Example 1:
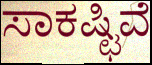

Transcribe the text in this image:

ಸಾಕಷ್ಟಿವೆ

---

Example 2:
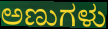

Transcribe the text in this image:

ಅಣುಗಳು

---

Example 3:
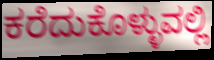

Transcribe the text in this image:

ಕರೆದುಕೊಳ್ಳುವಲ್ಲಿ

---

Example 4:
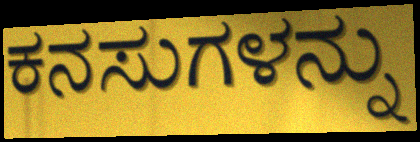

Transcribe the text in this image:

ಕನಸುಗಳನ್ನು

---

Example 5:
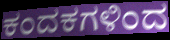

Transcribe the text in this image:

ಕಂದಕಗಳಿಂದ